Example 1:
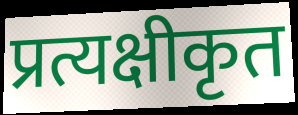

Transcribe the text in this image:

प्रत्यक्षीकृत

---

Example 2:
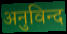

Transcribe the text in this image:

अनुविन्द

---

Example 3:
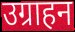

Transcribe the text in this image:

उग्राहन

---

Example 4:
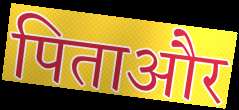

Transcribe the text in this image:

पिताऔर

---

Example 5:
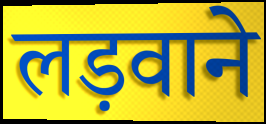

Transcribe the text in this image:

लड़वाने